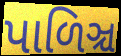
પાળિઞ્ચ